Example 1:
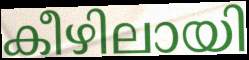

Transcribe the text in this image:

കീഴിലായി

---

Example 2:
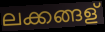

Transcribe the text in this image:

ലക്കങ്ങള്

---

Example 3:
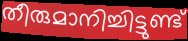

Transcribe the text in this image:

തീരുമാനിച്ചിട്ടുണ്ട്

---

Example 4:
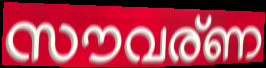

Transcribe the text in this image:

സൗവര്ണ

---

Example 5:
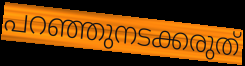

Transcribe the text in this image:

പറഞ്ഞുനടക്കരുത്